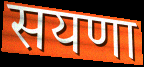
सयणा